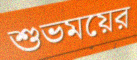
শুভময়ের